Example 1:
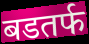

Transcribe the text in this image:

बडतर्फ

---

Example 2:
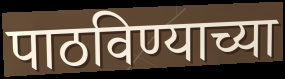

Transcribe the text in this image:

पाठविण्याच्या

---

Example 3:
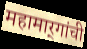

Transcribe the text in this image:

महामार्गांची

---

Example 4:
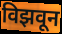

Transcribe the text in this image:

विझवून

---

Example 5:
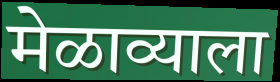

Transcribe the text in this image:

मेळाव्याला